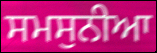
ਸਮਸੁਨੀਆ